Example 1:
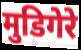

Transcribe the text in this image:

मुडिगेरे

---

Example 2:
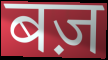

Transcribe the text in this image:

बज़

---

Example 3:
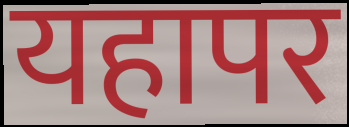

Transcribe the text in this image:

यहापर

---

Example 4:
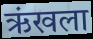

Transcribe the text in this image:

ऋंखला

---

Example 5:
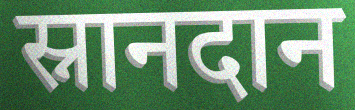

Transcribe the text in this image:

स्नानदान